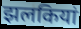
झलकियां